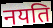
नयति